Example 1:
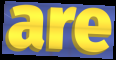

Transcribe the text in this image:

are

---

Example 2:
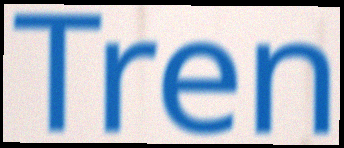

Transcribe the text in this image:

Tren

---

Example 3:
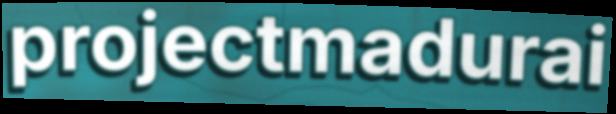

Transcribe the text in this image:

projectmadurai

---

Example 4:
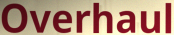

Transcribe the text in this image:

Overhaul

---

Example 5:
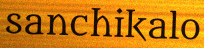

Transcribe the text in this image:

sanchikalo